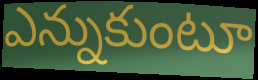
ఎన్నుకుంటూ